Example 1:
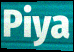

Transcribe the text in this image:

Piya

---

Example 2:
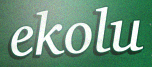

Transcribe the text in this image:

ekolu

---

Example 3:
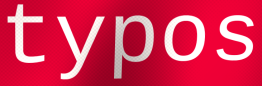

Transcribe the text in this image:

typos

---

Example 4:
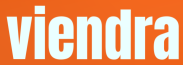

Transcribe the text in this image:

viendra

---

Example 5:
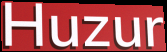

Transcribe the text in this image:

Huzur